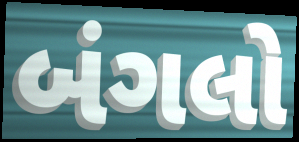
બંગલો